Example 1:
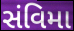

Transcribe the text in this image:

સંવિમા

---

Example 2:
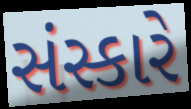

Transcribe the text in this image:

સંસ્કારે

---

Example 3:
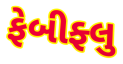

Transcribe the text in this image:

ફેબીફ્લુ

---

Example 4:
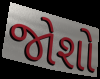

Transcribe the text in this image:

જોશો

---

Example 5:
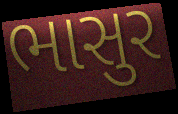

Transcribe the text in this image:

ભાસુર